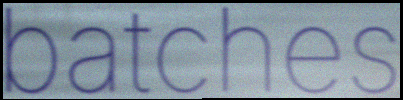
batches